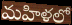
మహిళలో